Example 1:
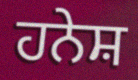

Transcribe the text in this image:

ਹਨੇਸ਼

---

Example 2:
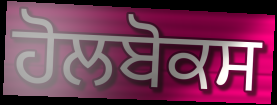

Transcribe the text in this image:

ਹੋਲਬੋਕਸ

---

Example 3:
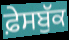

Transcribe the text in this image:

ਫ਼ੇਸਬੁੱਕ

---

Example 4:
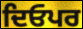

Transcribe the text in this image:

ਦਿਓਪਰ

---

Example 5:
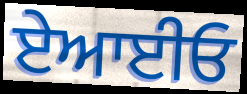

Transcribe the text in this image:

ਏਆਈਓ